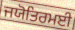
ਜਯੋਤਿਰਮਈ